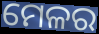
ମେଳର